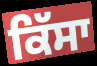
ਕਿੱਸਾ